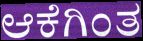
ಆಕೆಗಿಂತ